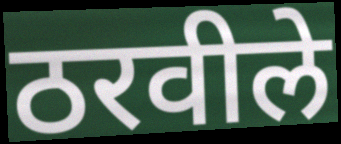
ठरवीले